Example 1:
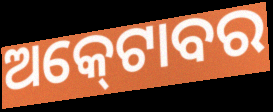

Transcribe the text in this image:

ଅକ୍‍ଟୋବର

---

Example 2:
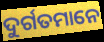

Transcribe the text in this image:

ଦୁର୍ଗତମାନେ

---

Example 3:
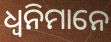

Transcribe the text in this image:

ଧ୍ୱନିମାନେ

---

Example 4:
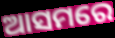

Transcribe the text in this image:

ଆସମରେ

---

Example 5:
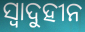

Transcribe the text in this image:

ସ୍ୱାଦୁହୀନ